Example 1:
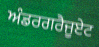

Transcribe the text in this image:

ਅੰਡਰਗਰੈਜੂਏਟ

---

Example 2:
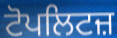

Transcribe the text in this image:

ਟੋਪਲਿਟਜ਼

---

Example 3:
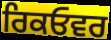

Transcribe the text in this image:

ਰਿਕਓਵਰ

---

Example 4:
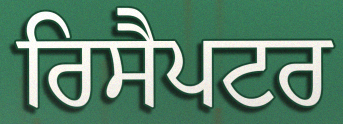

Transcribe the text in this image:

ਰਿਸੈਪਟਰ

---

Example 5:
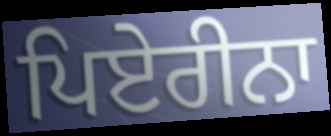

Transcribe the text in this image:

ਪਿਏਰੀਨਾ